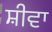
ਸ਼ੀਵਾ